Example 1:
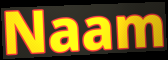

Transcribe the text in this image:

Naam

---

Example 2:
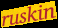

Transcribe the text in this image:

ruskin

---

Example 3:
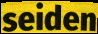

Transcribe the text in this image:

seiden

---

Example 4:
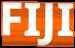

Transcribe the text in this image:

FIJI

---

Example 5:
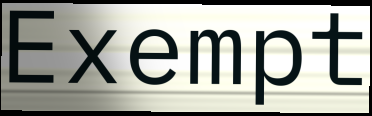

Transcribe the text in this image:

Exempt